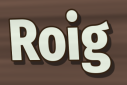
Roig